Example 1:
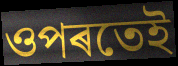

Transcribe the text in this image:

ওপৰতেই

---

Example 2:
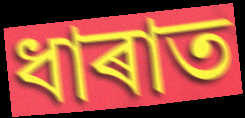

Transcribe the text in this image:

ধাৰাত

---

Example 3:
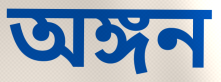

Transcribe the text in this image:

অঙ্গন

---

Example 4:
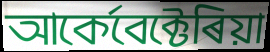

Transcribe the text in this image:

আৰ্কেবেক্টেৰিয়া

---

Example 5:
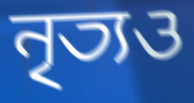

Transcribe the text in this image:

নৃত্যও